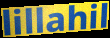
lillahil